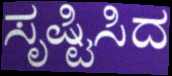
ಸೃಷ್ಟಿಸಿದ